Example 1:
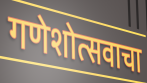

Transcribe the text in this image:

गणेशोत्सवाचा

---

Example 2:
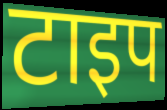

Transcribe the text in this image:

टाइप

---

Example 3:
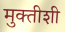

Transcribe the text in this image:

मुक्तीशी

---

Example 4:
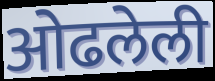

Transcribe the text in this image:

ओढलेली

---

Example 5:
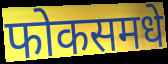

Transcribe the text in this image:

फोकसमधे